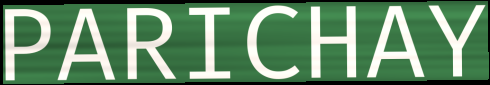
PARICHAY